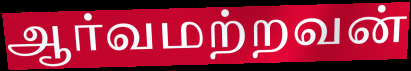
ஆர்வமற்றவன்